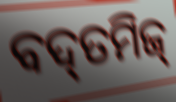
ବଦ୍‌ତମିଜ୍